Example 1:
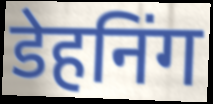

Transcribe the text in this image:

डेहनिंग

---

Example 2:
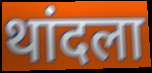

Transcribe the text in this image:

थांदला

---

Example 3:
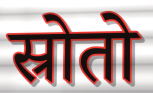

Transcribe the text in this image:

स्रोतो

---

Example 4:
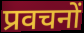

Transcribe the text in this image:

प्रवचनों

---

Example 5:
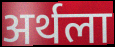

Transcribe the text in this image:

अर्थला